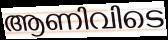
ആണിവിടെ